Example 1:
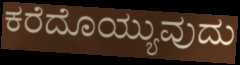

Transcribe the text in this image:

ಕರೆದೊಯ್ಯುವುದು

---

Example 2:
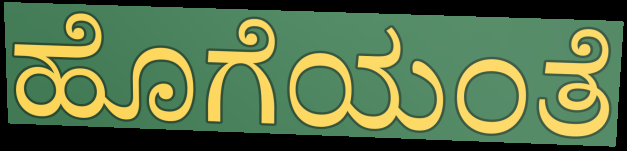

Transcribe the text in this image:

ಹೊಗೆಯಂತೆ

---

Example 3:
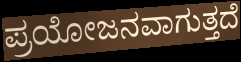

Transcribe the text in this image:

ಪ್ರಯೋಜನವಾಗುತ್ತದೆ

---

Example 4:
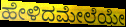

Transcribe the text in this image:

ಹೇಳಿದಮೇಲೆಯೇ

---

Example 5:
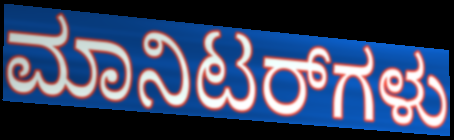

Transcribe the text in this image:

ಮಾನಿಟರ್‌ಗಳು